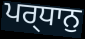
ਪਰ੍ਧਾਨੁ